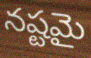
నష్టమై